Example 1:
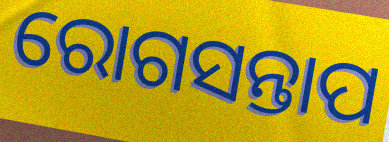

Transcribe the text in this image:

ରୋଗସନ୍ତାପ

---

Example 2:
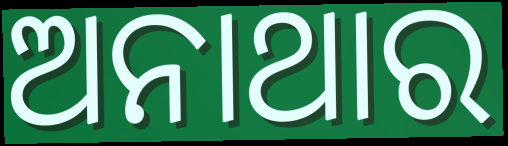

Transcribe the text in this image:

ଅନାଥାର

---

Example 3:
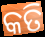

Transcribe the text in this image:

କତି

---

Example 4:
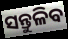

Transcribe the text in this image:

ସନ୍ତୁଳିବ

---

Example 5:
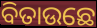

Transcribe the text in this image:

ବିତାଉଛେ